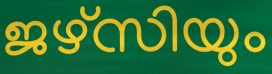
ജഴ്സിയും